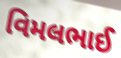
વિમલભાઈ